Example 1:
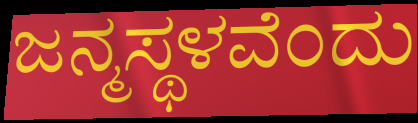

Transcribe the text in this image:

ಜನ್ಮಸ್ಥಳವೆಂದು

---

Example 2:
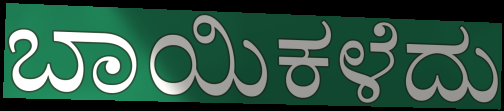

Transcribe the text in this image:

ಬಾಯಿಕಳೆದು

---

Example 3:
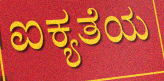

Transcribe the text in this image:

ಐಕ್ಯತೆಯ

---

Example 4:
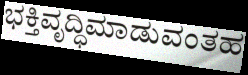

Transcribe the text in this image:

ಭಕ್ತಿವೃದ್ಧಿಮಾಡುವಂತಹ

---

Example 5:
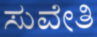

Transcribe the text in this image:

ಸುವೇತಿ